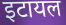
इटायल